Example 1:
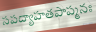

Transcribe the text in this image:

సపద్యాహతపాప్మనః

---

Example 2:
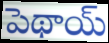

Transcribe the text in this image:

పెథాయ్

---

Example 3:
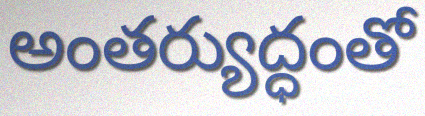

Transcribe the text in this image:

అంతర్యుద్ధంతో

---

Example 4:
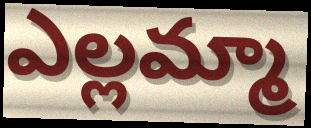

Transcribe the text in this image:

ఎల్లమ్మా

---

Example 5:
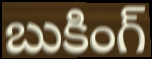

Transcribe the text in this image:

బుకింగ్